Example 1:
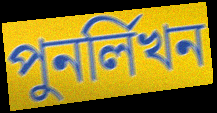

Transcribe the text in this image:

পুনর্লিখন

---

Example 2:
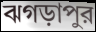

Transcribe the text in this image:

ঝগড়াপুর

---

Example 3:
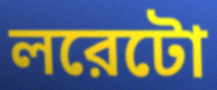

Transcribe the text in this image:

লরেটো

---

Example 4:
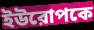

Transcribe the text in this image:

ইউরোপকে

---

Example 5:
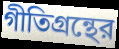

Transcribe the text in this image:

গীতিগ্রন্থের